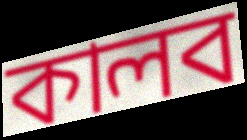
কালব